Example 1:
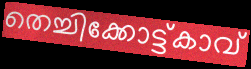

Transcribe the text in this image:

തെച്ചിക്കോട്ട്കാവ്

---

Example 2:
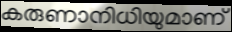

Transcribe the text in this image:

കരുണാനിധിയുമാണ്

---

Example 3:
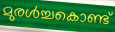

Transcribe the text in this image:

മുരൾച്ചകൊണ്ട്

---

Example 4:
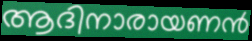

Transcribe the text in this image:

ആദിനാരായണൻ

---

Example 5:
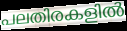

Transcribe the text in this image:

പലതിരകളിൽ